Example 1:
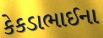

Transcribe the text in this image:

કેકડાભાઈના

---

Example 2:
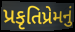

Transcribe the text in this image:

પ્રકૃતિપ્રેમનું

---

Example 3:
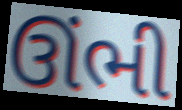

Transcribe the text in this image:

ઊંભી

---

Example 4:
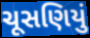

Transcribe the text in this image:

ચૂસણિયું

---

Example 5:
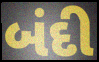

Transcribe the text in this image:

બંદી